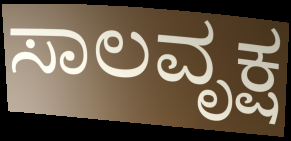
ಸಾಲವೃಕ್ಷ